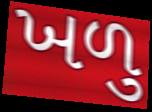
ખળુ